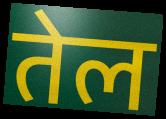
तेल